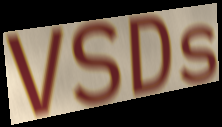
VSDs